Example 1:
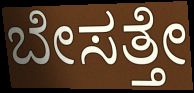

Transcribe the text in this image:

ಬೇಸತ್ತೇ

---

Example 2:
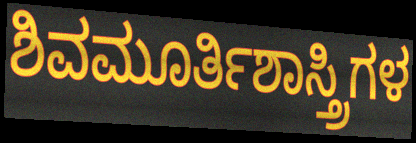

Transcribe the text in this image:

ಶಿವಮೂರ್ತಿಶಾಸ್ತ್ರಿಗಳ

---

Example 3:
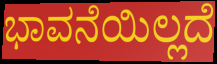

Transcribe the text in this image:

ಭಾವನೆಯಿಲ್ಲದೆ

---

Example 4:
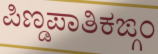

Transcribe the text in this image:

ಪಿಣ್ಡಪಾತಿಕಙ್ಗಂ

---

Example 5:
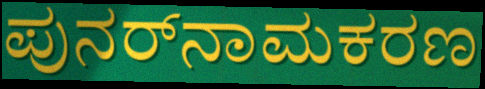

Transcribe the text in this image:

ಪುನರ್‌ನಾಮಕರಣ